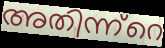
അതിന്ന്റെ